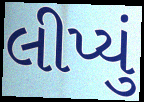
લીપ્યું